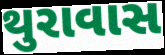
થુરાવાસ